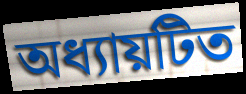
অধ্যায়টিত